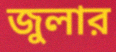
জুলার